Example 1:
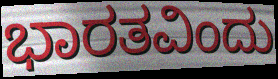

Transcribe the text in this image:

ಭಾರತವಿಂದು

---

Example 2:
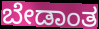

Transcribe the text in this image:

ಬೇಡಾಂತ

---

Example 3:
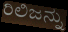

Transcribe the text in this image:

ರಿಲಿಜನ್ನು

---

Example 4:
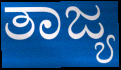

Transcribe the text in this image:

ತಾಜ್ಯ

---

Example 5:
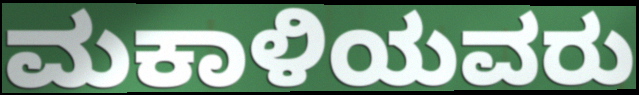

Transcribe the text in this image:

ಮಕಾಳಿಯವರು